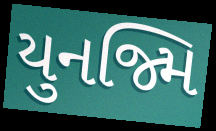
યુનજ્મિ